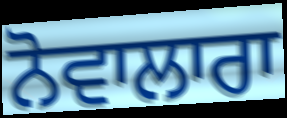
ਨੋਵਾਲਾਰਾ